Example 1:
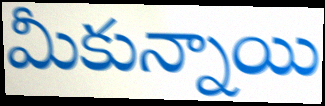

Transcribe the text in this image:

మీకున్నాయి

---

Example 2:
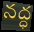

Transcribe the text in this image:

నద్ధ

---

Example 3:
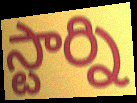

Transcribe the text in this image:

స్టార్ని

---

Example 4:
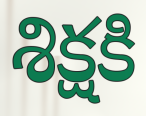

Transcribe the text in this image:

శిక్షకి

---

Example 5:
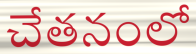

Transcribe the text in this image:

చేతనంలో